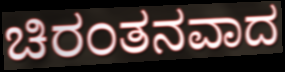
ಚಿರಂತನವಾದ